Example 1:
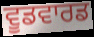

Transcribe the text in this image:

ਵੂਡਵਾਰਡ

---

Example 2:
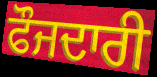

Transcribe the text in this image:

ਫੌਜਦਾਰੀ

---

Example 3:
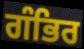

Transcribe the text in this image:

ਗੰਭਿਰ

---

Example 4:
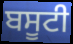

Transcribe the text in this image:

ਬਸੂਟੀ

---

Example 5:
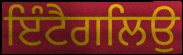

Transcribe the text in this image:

ਇੰਟੈਗਲਿਉ